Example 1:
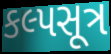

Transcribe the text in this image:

કલ્પસૂત્ર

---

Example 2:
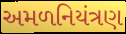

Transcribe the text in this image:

અમળનિયંત્રણ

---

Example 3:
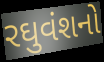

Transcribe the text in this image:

રઘુવંશનો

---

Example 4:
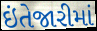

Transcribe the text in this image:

ઇંતેજારીમાં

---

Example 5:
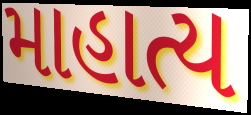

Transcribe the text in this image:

માહાત્ય